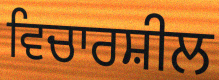
ਵਿਚਾਰਸ਼ੀਲ